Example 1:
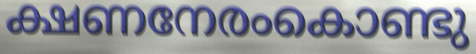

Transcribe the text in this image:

ക്ഷണനേരംകൊണ്ടു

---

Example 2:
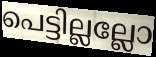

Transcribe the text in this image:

പെട്ടില്ലല്ലോ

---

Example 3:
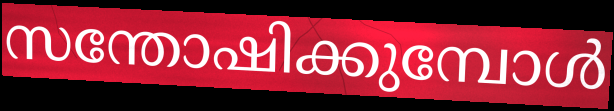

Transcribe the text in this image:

സന്തോഷിക്കുമ്പോൾ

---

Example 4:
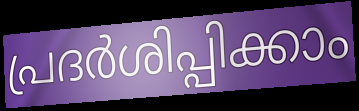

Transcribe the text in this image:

പ്രദർശിപ്പിക്കാം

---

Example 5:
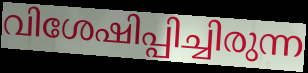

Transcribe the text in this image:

വിശേഷിപ്പിച്ചിരുന്ന